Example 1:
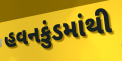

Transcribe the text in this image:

હવનકુંડમાંથી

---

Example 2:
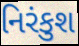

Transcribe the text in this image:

નિરંકુશ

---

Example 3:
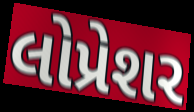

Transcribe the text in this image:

લોપ્રેશર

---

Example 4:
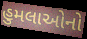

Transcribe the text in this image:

હુમલાઓનો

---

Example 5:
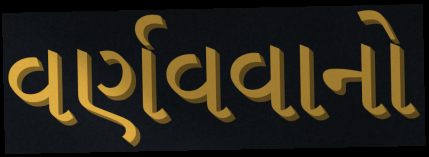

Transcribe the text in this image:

વર્ણવવાનો